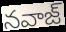
నవాజ్